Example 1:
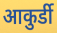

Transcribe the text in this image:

आकुर्डी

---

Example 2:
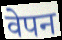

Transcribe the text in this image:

वेपन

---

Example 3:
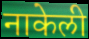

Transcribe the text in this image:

नाकेली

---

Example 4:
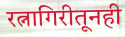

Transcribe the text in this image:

रत्नागिरीतूनही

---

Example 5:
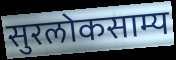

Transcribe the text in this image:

सुरलोकसाम्य